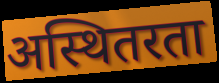
अस्थितरता